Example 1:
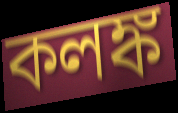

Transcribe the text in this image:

কলঙ্ক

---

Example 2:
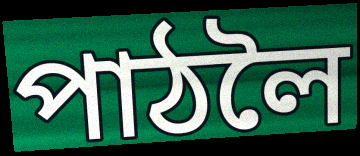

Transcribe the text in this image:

পাঠলৈ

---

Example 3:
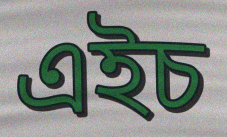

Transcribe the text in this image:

এইচ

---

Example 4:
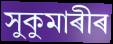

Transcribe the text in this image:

সুকুমাৰীৰ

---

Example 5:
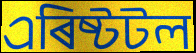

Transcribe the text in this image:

এৰিষ্টটল